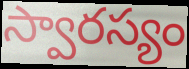
స్వారస్యం